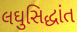
લઘુસિદ્ધાંત